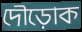
দৌড়োক